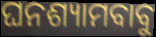
ଘନଶ୍ୟାମବାବୁ